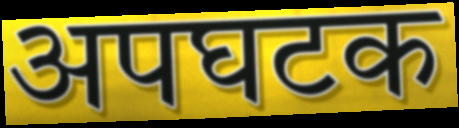
अपघटक